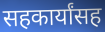
सहकार्यांसह